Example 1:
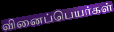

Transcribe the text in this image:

வினைப்பெயர்கள்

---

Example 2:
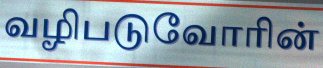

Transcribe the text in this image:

வழிபடுவோரின்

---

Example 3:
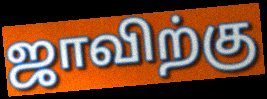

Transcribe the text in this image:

ஜாவிற்கு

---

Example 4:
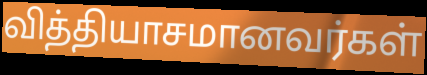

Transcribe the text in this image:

வித்தியாசமானவர்கள்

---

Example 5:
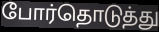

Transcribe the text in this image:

போர்தொடுத்து